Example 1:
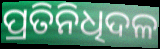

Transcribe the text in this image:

ପ୍ରତିନିଧିଦଳ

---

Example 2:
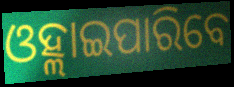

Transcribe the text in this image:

ଓହ୍ଲାଇପାରିବେ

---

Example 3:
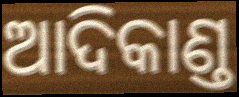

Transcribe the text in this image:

ଆଦିକାଣ୍ଡ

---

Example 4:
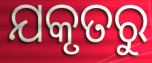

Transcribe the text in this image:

ଯକୃତରୁ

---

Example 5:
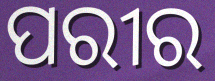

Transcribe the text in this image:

ପରୀର